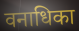
वनाधिका